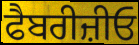
ਫੈਬਰੀਜ਼ੀਓ